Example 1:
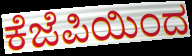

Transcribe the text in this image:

ಕೆಜೆಪಿಯಿಂದ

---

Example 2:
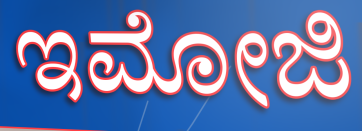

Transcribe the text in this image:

ಇಮೋಜಿ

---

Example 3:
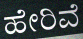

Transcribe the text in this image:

ಹೇರಿವೆ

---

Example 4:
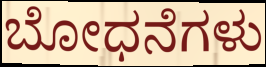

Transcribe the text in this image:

ಬೋಧನೆಗಳು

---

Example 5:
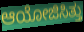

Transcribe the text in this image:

ಆಯೋಜಿಸಿತ್ತು